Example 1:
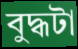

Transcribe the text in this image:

বুদ্ধটা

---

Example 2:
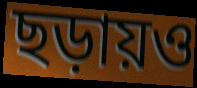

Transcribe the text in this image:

ছড়ায়ও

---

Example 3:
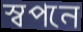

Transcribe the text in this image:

স্বপনে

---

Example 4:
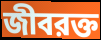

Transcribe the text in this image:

জীবরক্ত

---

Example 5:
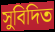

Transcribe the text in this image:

সুবিদিত